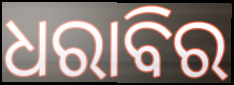
ଧରାବିର